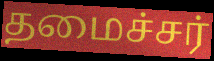
தமைச்சர்